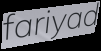
fariyad